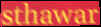
sthawar